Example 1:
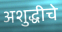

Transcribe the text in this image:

अशुद्धीचे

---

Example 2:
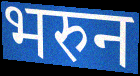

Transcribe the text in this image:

भरुन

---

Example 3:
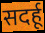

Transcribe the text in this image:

सदर्हू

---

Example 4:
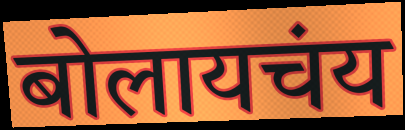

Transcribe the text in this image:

बोलायचंय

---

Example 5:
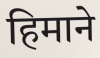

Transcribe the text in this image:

हिमाने